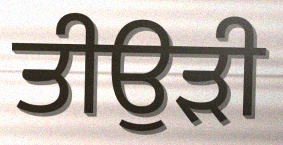
ਤੀਉੜੀ